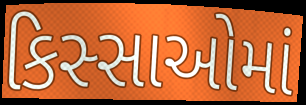
કિસ્સાઓમાં